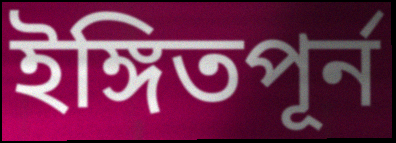
ইঙ্গিতপূর্ন